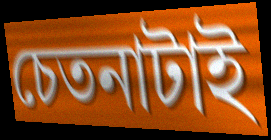
চেতনাটাই